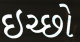
ઇચ્છો